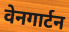
वेनगार्टन